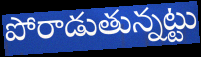
పోరాడుతున్నట్టు